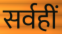
सर्वहीं